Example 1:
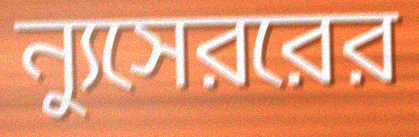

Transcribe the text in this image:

ন্যুসেররের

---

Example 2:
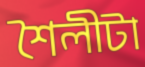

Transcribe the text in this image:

শৈলীটা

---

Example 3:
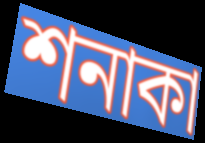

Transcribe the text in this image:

শনাকা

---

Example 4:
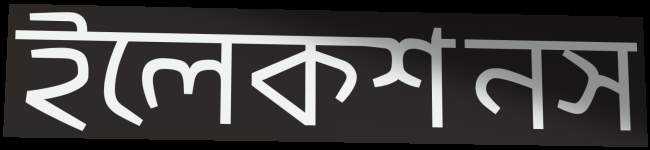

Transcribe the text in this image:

ইলেকশনস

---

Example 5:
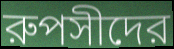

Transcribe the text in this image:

রুপসীদের